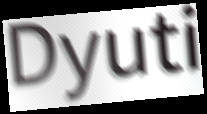
Dyuti